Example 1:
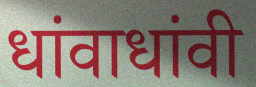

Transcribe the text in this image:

धांवाधांवी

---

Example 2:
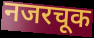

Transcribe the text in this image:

नजरचूक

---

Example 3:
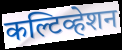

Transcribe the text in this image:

कल्टिव्हेशन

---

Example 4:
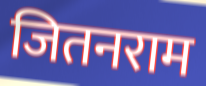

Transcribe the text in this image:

जितनराम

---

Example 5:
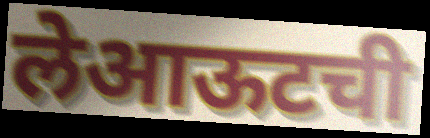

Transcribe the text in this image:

लेआऊटची